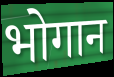
भोगान